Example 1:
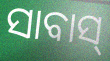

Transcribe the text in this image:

ସାବାସ୍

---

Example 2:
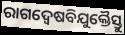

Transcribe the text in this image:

ରାଗଦ୍ୱେଷବିଯୁକ୍ତୈସ୍ତୁ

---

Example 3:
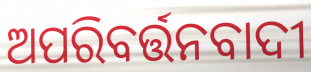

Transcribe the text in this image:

ଅପରିବର୍ତ୍ତନବାଦୀ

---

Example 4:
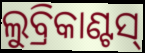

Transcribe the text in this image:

ଲୁବ୍ରିକାଣ୍ଟସ୍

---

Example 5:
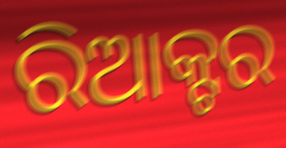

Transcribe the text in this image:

ରିଆକ୍ଟର